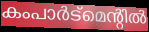
കംപാർട്മെന്റിൽ